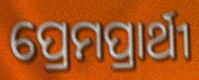
ପ୍ରେମପ୍ରାର୍ଥୀ